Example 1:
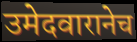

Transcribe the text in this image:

उमेदवारानेच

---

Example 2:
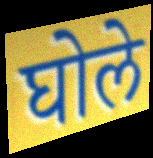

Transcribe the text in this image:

घोले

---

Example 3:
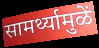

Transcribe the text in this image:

सामर्थ्यामुळें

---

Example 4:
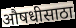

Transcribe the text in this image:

औषधीसाठा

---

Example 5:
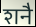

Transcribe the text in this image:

शनै